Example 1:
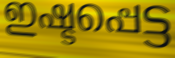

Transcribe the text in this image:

ഇഷ്ടപ്പെട്ട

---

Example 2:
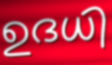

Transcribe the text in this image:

ഉദധി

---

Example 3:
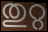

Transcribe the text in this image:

തുറ്റ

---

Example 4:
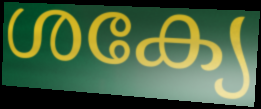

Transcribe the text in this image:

ശക്യേ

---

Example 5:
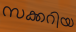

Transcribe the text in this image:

സക്കറിയ